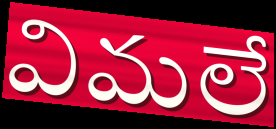
విమలే